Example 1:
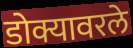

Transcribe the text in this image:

डोक्यावरले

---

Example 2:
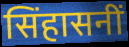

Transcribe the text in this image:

सिंहासनीं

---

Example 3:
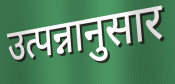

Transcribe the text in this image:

उत्पन्नानुसार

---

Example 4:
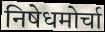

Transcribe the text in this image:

निषेधमोर्चा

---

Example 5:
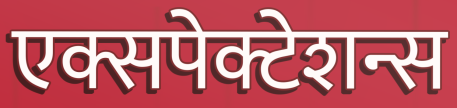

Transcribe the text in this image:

एक्सपेक्टेशन्स